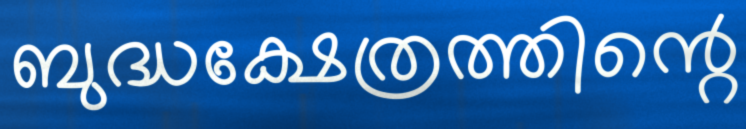
ബുദ്ധക്ഷേത്രത്തിന്റെ